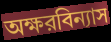
অক্ষরবিন্যাস